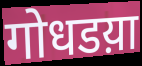
गोधडय़ा